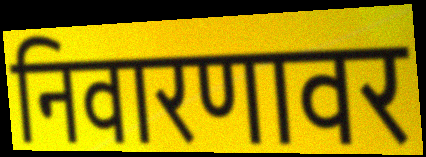
निवारणावर